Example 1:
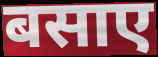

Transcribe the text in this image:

बसाए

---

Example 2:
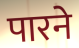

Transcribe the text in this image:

पारने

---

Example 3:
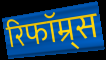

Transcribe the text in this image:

रिफॉम्र्स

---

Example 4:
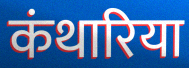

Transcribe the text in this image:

कंथारिया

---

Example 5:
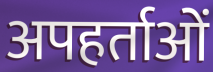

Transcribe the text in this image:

अपहर्ताओं